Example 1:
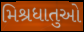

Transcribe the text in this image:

મિશ્રધાતુઓ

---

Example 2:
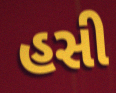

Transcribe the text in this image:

હસી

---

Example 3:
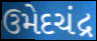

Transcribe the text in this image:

ઉમેદચંદ્ર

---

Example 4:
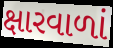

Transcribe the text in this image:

ક્ષારવાળાં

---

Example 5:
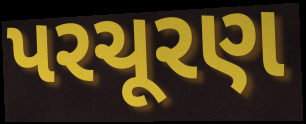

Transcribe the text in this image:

પરચૂરણ